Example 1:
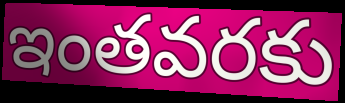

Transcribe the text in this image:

ఇంతవరకు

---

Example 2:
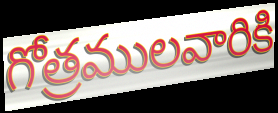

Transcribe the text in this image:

గోత్రములవారికి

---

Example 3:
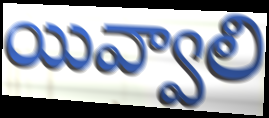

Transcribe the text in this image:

యివ్వాలి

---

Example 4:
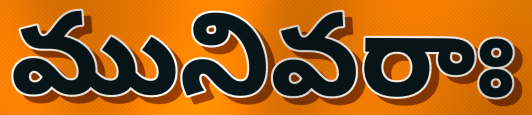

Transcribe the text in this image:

మునివరాః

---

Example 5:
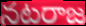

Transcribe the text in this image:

నటరాజ